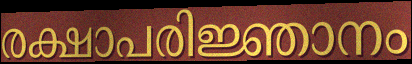
രക്ഷാപരിജ്ഞാനം